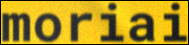
moriai